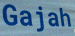
Gajah